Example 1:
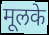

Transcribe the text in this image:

मूलके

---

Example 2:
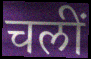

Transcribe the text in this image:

चलीं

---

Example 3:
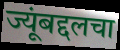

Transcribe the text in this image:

ज्यूंबद्दलचा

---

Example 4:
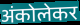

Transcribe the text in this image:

अंकोलेकर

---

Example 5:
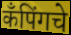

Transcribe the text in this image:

कँपिंगचे